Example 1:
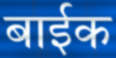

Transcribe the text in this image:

बाईक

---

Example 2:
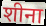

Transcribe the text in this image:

शीना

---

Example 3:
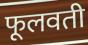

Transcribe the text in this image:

फूलवती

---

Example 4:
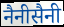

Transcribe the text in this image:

नैनीसैनी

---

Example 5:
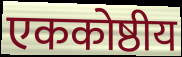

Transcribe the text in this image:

एककोष्ठीय